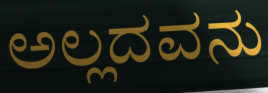
ಅಲ್ಲದವನು